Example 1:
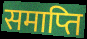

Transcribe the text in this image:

समाप्‍ति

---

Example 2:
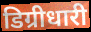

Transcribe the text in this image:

डिग्रीधारी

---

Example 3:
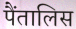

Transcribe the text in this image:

पैंतालिस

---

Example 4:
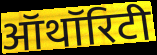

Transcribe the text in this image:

ऑथॉरिटी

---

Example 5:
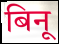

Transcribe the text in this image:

बिनू